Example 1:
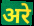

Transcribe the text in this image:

अरे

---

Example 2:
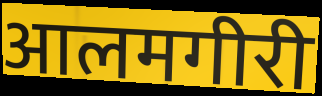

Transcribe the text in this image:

आलमगीरी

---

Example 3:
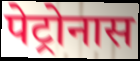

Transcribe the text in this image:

पेट्रोनास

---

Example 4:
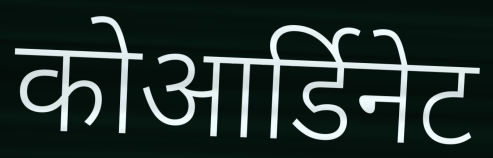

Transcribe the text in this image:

कोआर्डिनेट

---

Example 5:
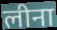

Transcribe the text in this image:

लीना